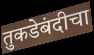
तुकडेबंदीचा